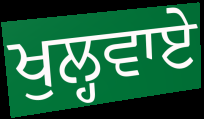
ਖੁਲ੍ਹਵਾਏ